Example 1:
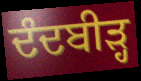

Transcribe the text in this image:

ਦੰਦਬੀੜ੍ਹ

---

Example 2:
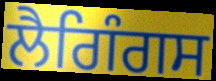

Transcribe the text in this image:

ਲੈਗਿੰਗਸ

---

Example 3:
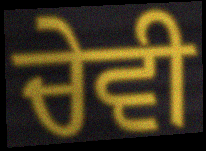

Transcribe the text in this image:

ਚੇਵੀ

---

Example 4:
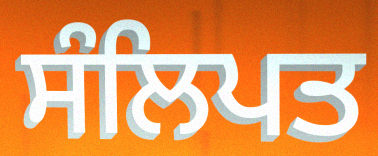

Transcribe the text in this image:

ਸੰਲਿਪਤ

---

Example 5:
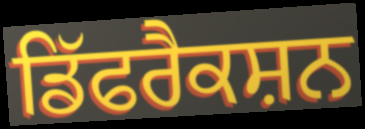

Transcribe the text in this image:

ਡਿੱਫਰੈਕਸ਼ਨ